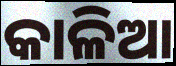
କାଳିଆ